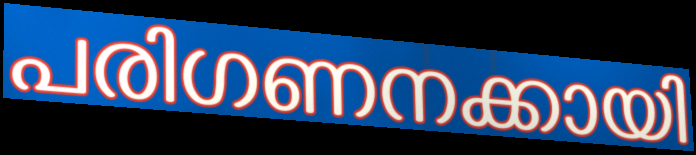
പരിഗണനക്കായി